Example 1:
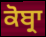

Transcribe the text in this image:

ਕੋਬ੍ਰਾ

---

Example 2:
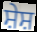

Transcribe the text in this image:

ਸ਼ੇਸ਼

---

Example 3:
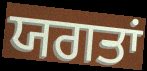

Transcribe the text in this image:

ਯਗਤਾਂ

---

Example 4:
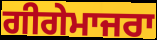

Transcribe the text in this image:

ਗੀਗੇਮਾਜਰਾ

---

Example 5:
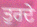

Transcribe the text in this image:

ਤੁਰਦੇ